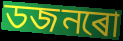
ডজনৰো